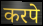
करपे